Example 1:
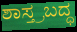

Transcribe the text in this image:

ಶಾಸ್ತ್ರಬದ್ಧ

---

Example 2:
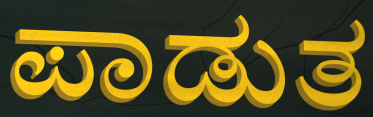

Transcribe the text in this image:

ಪಾಡುತ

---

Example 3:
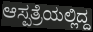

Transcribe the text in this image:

ಆಸ್ಪತ್ರೆಯಲ್ಲಿದ್ದ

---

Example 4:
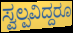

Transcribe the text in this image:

ಸ್ವಲ್ಪವಿದ್ದರೂ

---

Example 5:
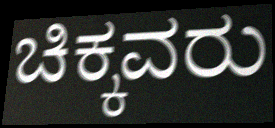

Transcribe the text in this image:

ಚಿಕ್ಕವರು